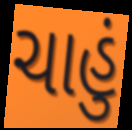
ચાહું